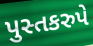
પુસ્તકરુપે